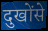
दुखोंसे